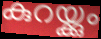
കുറയ്ക്കും